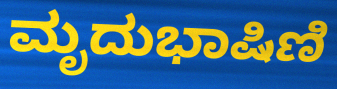
ಮೃದುಭಾಷಿಣಿ